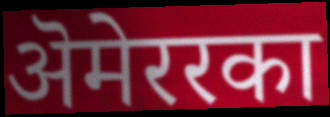
ऄमेररका